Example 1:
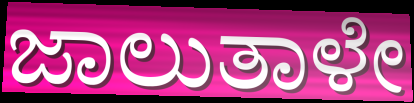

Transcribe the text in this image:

ಜಾಲುತಾಳೇ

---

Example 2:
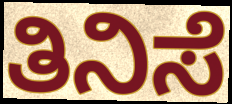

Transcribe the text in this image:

ತಿನಿಸೆ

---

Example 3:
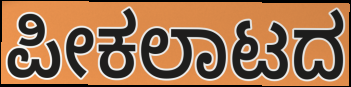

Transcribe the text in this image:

ಪೀಕಲಾಟದ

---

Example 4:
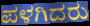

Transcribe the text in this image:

ಪಳಗಿದರು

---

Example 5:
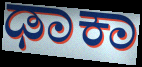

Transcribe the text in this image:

ಢಾಕಾ